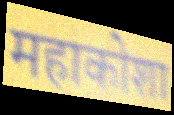
महाकोशा